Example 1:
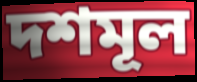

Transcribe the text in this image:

দশমূল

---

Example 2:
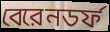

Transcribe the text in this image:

বেরেনডর্ফ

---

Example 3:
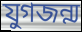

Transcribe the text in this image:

যুগজন্ম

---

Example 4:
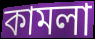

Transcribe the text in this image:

কামলা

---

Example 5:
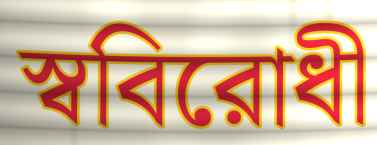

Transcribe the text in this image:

স্ববিরোধী